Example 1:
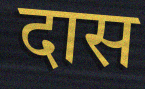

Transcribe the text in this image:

दास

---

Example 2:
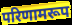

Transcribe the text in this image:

परिणामरूप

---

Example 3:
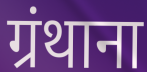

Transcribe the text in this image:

ग्रंथाना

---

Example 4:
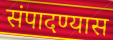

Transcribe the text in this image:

संपादण्यास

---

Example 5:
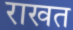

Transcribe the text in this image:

राखत